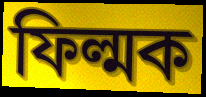
ফিল্মক